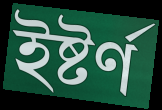
ইষ্টৰ্ণ